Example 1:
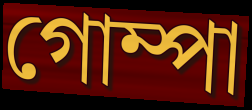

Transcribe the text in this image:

গোম্পা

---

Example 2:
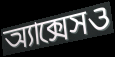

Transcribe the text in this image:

অ্যাক্সেসও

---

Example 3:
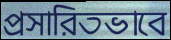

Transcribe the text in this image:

প্রসারিতভাবে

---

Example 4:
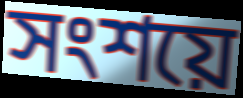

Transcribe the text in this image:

সংশয়ে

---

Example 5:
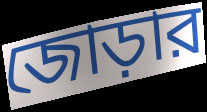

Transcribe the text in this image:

জোড়ার